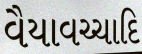
વૈયાવચ્ચાદિ